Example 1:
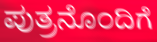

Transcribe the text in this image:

ಪುತ್ರನೊಂದಿಗೆ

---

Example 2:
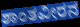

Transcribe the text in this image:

ಶಾಂತವೀರನ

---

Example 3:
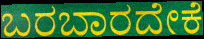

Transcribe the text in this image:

ಬರಬಾರದೇಕೆ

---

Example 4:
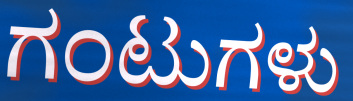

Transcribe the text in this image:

ಗಂಟುಗಳು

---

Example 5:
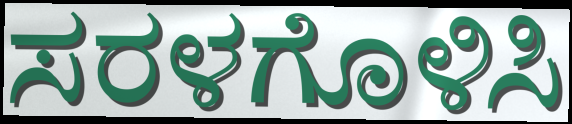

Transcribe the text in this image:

ಸರಳಗೊಳಿಸಿ